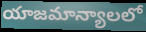
యాజమాన్యాలలో